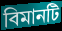
বিমানটি